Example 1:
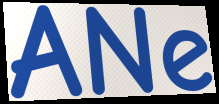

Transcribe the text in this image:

ANe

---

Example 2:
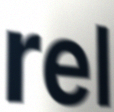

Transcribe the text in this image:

rel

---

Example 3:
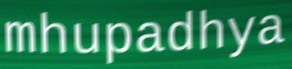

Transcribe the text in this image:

mhupadhya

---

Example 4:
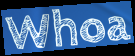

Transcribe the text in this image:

Whoa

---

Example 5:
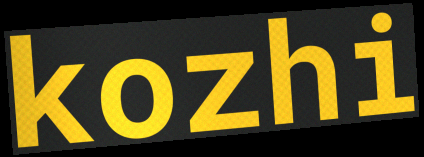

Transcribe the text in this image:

kozhi